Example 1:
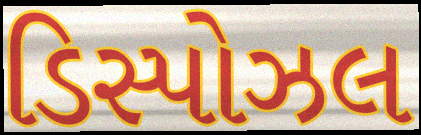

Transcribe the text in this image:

ડિસ્પોઝલ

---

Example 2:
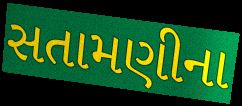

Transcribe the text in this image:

સતામણીના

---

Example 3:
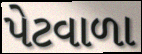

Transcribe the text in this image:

પેટવાળા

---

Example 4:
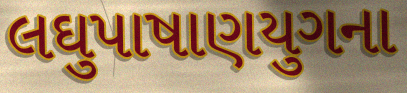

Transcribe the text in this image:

લઘુપાષાણયુગના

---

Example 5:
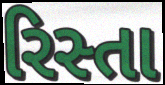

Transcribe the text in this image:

રિસ્તા